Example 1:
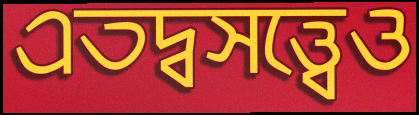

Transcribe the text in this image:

এতদ্বসত্ত্বেও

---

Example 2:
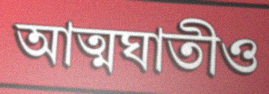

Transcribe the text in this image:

আত্মঘাতীও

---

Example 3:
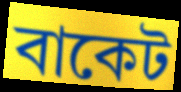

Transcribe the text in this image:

বাকেট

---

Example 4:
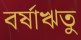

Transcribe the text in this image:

বর্ষাঋতু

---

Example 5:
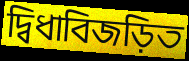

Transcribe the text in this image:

দ্বিধাবিজড়িত